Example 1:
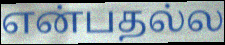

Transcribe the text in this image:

என்பதல்ல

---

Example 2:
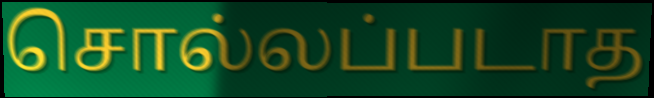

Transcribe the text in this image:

சொல்லப்படாத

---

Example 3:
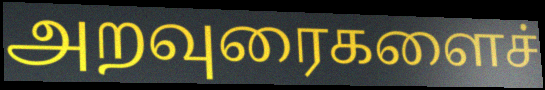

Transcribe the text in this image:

அறவுரைகளைச்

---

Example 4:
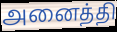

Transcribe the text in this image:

அனைத்தி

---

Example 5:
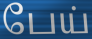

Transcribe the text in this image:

பேய்